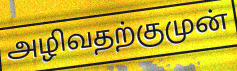
அழிவதற்குமுன்